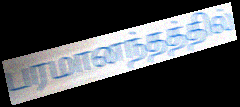
பரமானந்தத்தில்